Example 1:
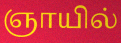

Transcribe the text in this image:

ஞாயில்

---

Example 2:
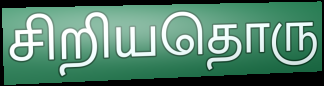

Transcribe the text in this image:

சிறியதொரு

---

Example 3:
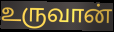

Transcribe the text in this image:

உருவான்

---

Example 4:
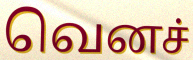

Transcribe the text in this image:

வெனச்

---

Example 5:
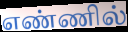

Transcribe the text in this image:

எண்ணில்